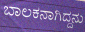
ಬಾಲಕನಾಗಿದ್ದನು